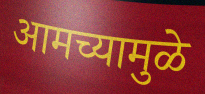
आमच्यामुळे